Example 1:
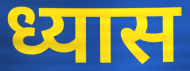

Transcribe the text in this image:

ध्यास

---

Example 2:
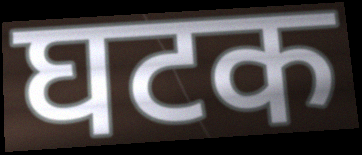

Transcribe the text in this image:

घटक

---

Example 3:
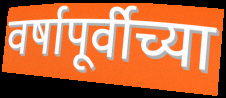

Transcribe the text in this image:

वर्षापूर्वीच्या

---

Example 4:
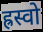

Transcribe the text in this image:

ह्रस्वो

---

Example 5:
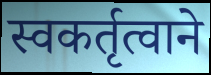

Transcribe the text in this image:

स्वकर्तृत्वाने